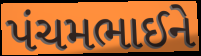
પંચમભાઈને